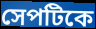
সেপটিকে